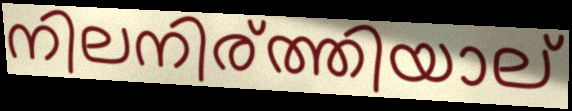
നിലനിര്ത്തിയാല്